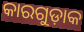
କାରଗୁଡ଼ାକ